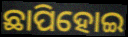
ଛାପିହୋଇ